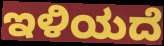
ಇಳಿಯದೆ